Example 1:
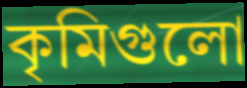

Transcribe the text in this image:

কৃমিগুলো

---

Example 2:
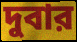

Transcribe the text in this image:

দুবার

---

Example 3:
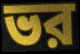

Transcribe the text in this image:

ভর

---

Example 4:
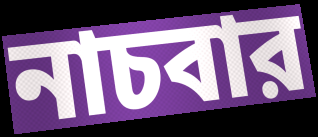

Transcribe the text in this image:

নাচবার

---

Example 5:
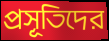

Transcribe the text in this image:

প্রসূতিদের